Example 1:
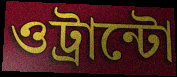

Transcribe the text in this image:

ওট্রান্টো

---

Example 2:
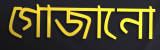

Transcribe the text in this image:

গোজানো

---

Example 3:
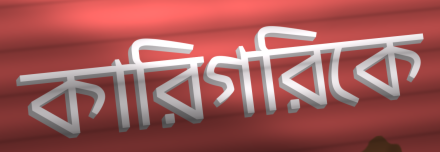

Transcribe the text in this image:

কারিগরিকে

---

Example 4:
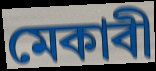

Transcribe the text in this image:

মেকাবী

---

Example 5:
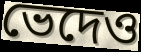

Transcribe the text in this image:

ভেদেও